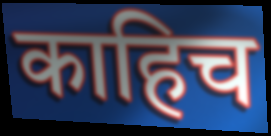
काहिच